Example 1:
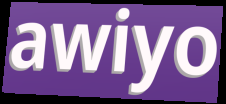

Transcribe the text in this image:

awiyo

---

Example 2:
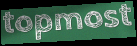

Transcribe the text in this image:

topmost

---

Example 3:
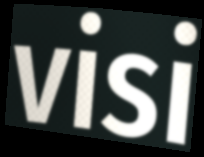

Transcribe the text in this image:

visi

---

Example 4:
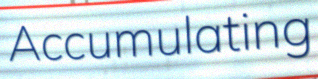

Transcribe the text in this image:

Accumulating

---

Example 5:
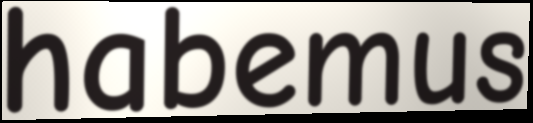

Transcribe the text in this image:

habemus